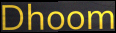
Dhoom